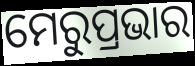
ମେରୁପ୍ରଭାର